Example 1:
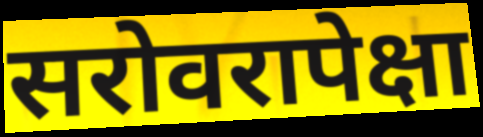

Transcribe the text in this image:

सरोवरापेक्षा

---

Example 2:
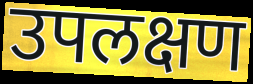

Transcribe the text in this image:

उपलक्षण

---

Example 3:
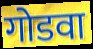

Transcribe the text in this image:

गोडवा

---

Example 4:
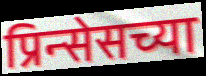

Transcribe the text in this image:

प्रिन्सेसच्या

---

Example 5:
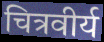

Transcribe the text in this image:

चित्रवीर्य